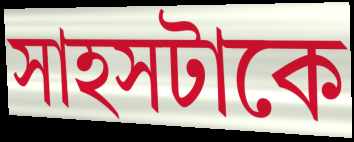
সাহসটাকে